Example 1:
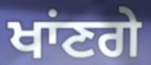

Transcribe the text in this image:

ਖਾਂਣਗੇ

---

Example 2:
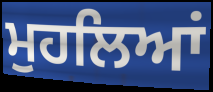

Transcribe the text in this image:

ਮੁਹਲਿਆਂ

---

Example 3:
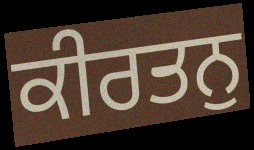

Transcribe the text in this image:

ਕੀਰਤਨੁ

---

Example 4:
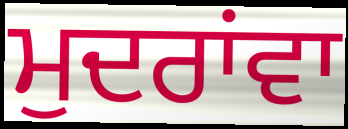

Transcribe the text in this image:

ਮੁਦਰਾਂਵਾ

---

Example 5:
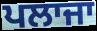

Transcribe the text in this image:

ਪਲਾਜਾ